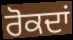
ਰੋਕਦਾਂ